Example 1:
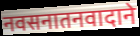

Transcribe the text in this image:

नवसनातनवादाने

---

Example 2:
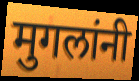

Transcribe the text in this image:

मुगलांनी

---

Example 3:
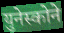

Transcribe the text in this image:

युनेस्कोने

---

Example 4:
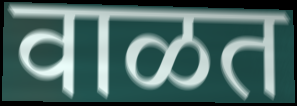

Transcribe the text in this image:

वाळत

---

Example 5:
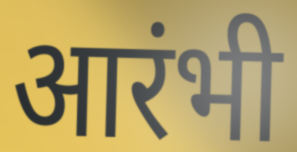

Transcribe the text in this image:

आरंभी